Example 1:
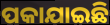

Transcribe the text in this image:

ପକାଯାଇଛି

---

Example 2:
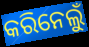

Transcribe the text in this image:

କରିନେଲୁଁ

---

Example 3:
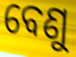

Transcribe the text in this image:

ବେଣୁ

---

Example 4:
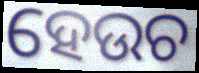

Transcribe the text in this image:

ହେଉଚ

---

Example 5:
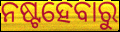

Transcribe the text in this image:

ନଷ୍ଟହେବାରୁ